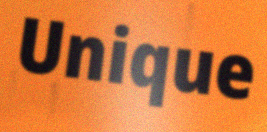
Unique